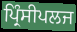
ਪ੍ਰਿੰਸੀਪਲਜ